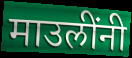
माउलींनी